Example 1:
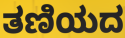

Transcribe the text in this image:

ತಣಿಯದ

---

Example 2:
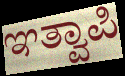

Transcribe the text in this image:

ಞತ್ವಾಪಿ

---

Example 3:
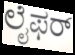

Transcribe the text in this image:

ಲೈಫರ್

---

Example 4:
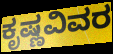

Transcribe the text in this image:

ಕೃಷ್ಣವಿವರ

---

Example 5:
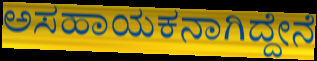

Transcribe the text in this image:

ಅಸಹಾಯಕನಾಗಿದ್ದೇನೆ